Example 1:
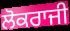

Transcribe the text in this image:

ਲੋਕਰਾਜੀ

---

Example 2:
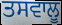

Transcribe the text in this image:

ਤਸਵਾਲੂ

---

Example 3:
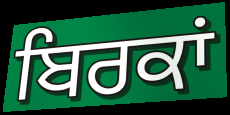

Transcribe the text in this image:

ਬਿਰਕਾਂ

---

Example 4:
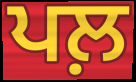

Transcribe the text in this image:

ਪਲ਼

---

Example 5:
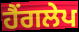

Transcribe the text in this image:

ਹੈਂਗਲੇਪ